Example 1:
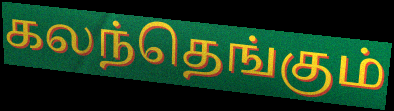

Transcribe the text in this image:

கலந்தெங்கும்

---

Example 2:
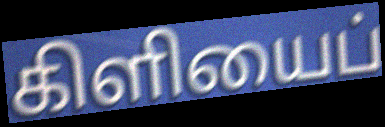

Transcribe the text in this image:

கிளியைப்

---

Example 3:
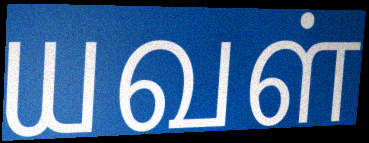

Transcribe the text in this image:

யவள்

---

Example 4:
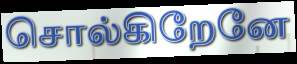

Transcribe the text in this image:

சொல்கிறேனே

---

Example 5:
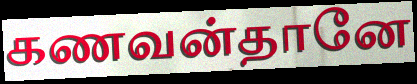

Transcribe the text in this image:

கணவன்தானே